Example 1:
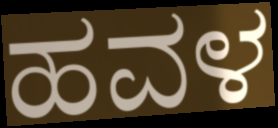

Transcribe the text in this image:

ಹವಳ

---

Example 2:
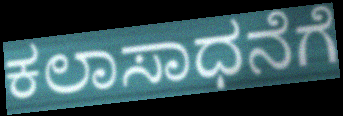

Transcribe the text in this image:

ಕಲಾಸಾಧನೆಗೆ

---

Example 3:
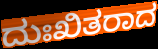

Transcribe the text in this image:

ದುಃಖಿತರಾದ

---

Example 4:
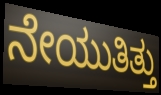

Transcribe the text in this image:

ನೇಯುತಿತ್ತು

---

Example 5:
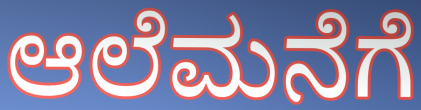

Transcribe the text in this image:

ಆಲೆಮನೆಗೆ